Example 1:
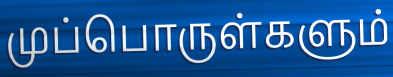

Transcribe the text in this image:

முப்பொருள்களும்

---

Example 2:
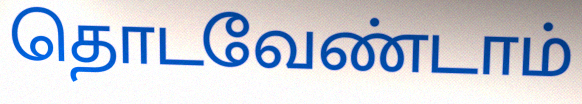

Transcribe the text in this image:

தொடவேண்டாம்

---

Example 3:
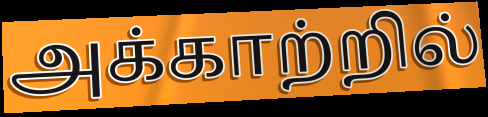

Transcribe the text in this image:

அக்காற்றில்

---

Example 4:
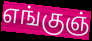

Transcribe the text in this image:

எங்குஞ்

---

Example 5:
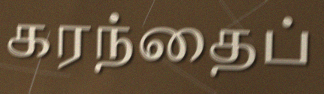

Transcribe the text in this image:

கரந்தைப்